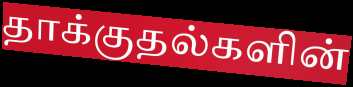
தாக்குதல்களின்